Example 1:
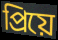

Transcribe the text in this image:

প্রিয়ে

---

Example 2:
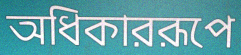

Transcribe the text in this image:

অধিকাররূপে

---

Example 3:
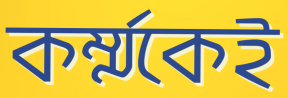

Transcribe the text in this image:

কর্ম্মকেই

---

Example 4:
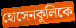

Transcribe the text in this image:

হোসেনকুলিকে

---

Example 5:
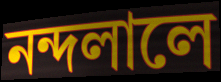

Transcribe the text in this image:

নন্দলালে